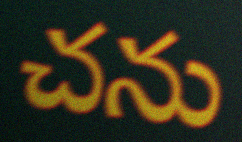
చను